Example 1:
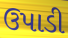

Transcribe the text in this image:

ઉપાડી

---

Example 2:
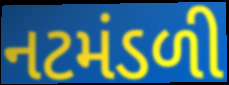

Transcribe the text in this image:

નટમંડળી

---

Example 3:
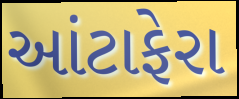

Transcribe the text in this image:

આંટાફેરા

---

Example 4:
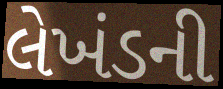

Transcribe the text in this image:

લેખંડની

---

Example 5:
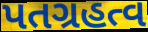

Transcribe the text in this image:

પતગ્રહત્વ